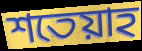
শতেয়াহ